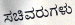
ಸಚಿವರುಗಳು